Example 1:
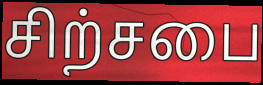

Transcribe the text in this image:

சிற்சபை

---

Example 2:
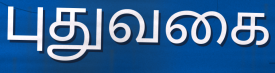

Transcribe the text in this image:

புதுவகை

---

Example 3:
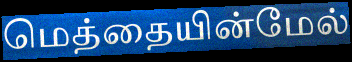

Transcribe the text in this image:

மெத்தையின்மேல்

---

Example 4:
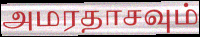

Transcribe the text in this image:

அமரதாசவும்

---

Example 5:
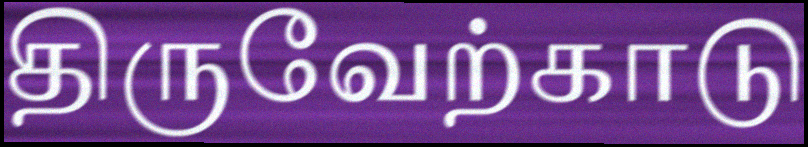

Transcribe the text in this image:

திருவேற்காடு